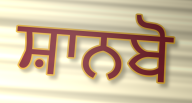
ਸ਼ਾਨਬੋ